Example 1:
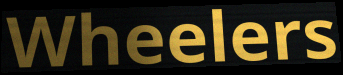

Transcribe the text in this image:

Wheelers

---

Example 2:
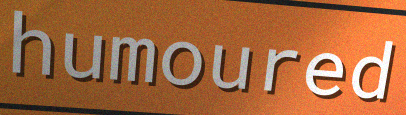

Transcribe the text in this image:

humoured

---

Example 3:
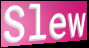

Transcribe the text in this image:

Slew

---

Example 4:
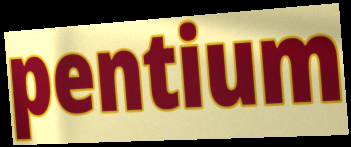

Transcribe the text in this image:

pentium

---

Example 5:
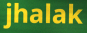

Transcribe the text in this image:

jhalak